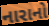
નારાનો